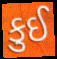
કુઈ